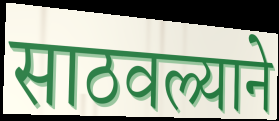
साठवल्याने